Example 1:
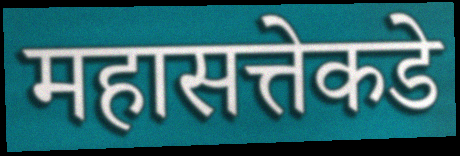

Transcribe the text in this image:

महासत्तेकडे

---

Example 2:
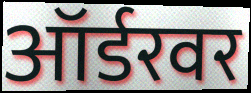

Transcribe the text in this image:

ऑर्डरवर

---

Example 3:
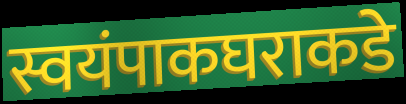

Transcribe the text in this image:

स्वयंपाकघराकडे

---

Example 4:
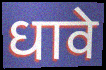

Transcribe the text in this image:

धावे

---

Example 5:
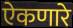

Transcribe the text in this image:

ऐकणारे